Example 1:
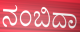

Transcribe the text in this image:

ನಂಬಿದಾ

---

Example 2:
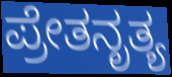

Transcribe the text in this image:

ಪ್ರೇತನೃತ್ಯ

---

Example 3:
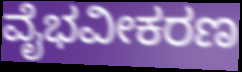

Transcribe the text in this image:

ವೈಭವೀಕರಣ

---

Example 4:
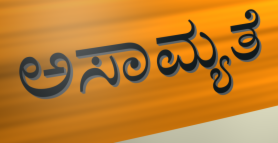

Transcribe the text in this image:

ಅಸಾಮ್ಯತೆ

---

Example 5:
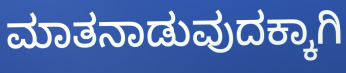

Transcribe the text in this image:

ಮಾತನಾಡುವುದಕ್ಕಾಗಿ